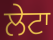
ਲੇਟਾ